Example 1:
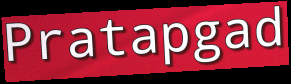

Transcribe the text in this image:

Pratapgad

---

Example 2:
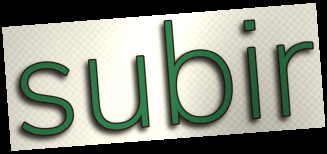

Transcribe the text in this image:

subir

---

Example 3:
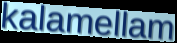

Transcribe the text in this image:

kalamellam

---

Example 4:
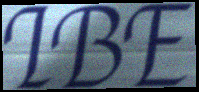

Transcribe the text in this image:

IBE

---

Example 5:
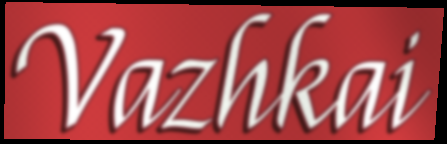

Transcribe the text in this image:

Vazhkai